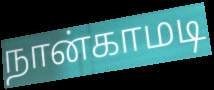
நான்காமடி